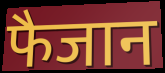
फैजान